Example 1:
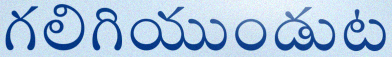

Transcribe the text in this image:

గలిగియుండుట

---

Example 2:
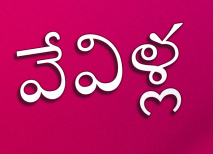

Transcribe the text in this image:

వేవిళ్ల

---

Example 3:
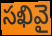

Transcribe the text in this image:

సఖివై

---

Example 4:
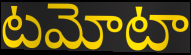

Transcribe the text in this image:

టమోటా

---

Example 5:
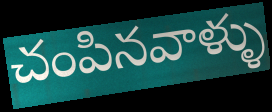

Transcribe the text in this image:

చంపినవాళ్ళు